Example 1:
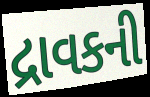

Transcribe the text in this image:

દ્રાવકની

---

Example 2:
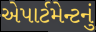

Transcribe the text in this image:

એપાર્ટમેન્ટનું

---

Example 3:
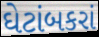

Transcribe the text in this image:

ઘેટાંબકરાં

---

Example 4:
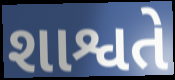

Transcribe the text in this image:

શાશ્વતે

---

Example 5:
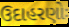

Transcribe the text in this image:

ઉદાહરણોઃ